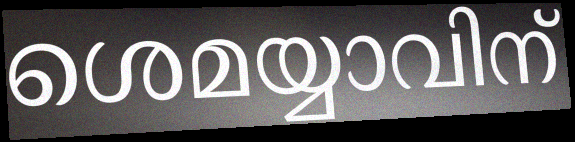
ശെമയ്യാവിന്